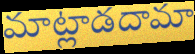
మాట్లాడదామా